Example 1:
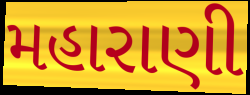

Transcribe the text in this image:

મહારાણી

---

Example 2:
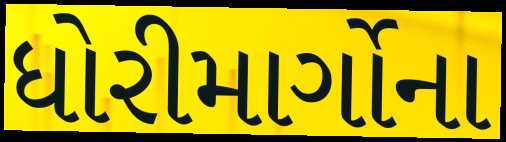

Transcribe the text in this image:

ધોરીમાર્ગોના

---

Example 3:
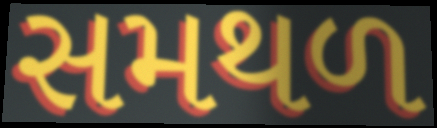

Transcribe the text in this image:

સમથળ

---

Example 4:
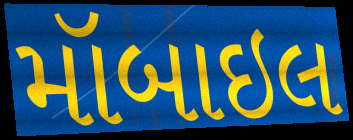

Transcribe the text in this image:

મૉબાઇલ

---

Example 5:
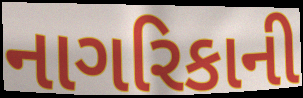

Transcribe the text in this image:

નાગરિકાની